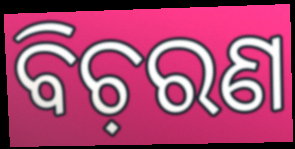
ବିଚ଼ରଣ